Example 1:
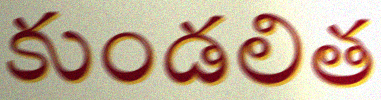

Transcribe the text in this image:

కుండలిత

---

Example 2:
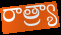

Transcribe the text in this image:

రాత్ర్యా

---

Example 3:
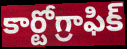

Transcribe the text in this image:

కార్టోగ్రాఫిక్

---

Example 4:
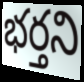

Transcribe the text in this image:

భర్తని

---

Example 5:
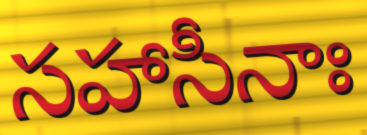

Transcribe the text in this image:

సహాసీనాః